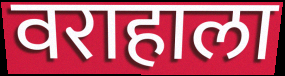
वराहाला